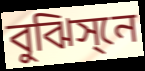
বুঝিস্‌নে